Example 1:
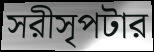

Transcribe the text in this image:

সরীসৃপটার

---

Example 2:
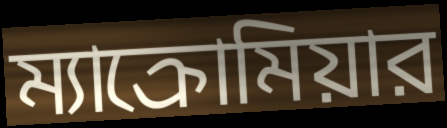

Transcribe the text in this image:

ম্যাক্রোমিয়ার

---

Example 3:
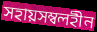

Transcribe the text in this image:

সহায়সম্বলহীন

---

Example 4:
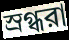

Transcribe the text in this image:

স্রগ্ধরা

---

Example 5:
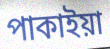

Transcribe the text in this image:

পাকাইয়া